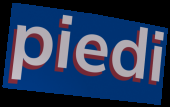
piedi